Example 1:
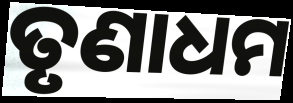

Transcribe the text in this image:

ତୃଣାଧମ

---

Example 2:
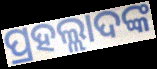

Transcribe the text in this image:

ପ୍ରହଲ୍ଲାଦଙ୍କ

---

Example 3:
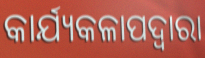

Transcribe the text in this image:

କାର୍ଯ୍ୟକଳାପଦ୍ୱାରା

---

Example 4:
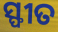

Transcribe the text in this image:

ସ୍ଫୀତ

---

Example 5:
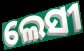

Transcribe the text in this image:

ଲେସୀ